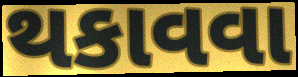
થકાવવા